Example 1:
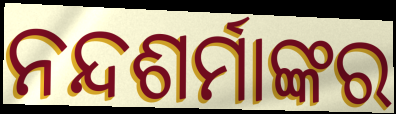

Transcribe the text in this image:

ନନ୍ଦଶର୍ମାଙ୍କର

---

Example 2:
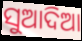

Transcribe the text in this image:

ସୁଆଦିଆ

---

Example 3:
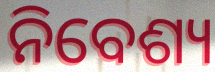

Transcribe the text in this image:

ନିବେଶ୍ୟ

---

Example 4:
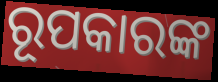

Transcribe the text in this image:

ରୂପକାରଙ୍କ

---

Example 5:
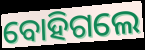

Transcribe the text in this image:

ବୋହିଗଲେ